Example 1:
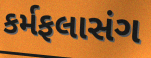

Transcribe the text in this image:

કર્મફલાસંગ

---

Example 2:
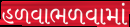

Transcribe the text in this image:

હળવાભળવામાં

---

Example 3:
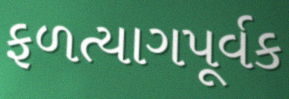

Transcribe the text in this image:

ફળત્યાગપૂર્વક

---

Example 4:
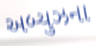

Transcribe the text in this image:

અબ્યુઝના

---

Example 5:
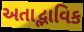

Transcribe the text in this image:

અતાદ્ભાવિક